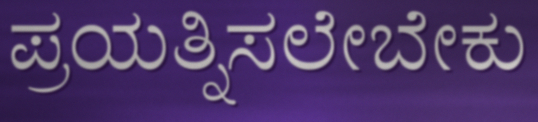
ಪ್ರಯತ್ನಿಸಲೇಬೇಕು